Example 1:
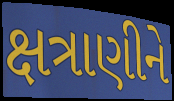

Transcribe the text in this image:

ક્ષત્રાણીને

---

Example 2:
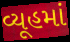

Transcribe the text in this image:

વ્યૂહમાં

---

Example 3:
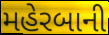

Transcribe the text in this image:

મહેરબાની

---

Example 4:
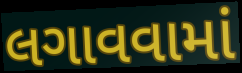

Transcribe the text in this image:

લગાવવામાં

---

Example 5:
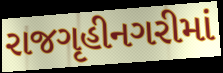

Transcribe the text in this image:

રાજગૃહીનગરીમાં